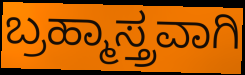
ಬ್ರಹ್ಮಾಸ್ತ್ರವಾಗಿ